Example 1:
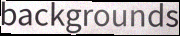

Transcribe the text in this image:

backgrounds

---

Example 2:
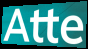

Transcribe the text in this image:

Atte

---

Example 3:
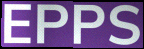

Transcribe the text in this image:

EPPS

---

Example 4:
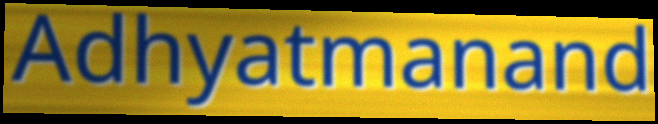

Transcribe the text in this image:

Adhyatmanand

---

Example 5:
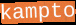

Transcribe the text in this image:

kampto